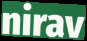
nirav